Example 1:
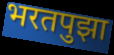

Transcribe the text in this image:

भरतपुझा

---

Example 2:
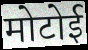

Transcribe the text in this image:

मोटोई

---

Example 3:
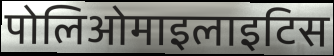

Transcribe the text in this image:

पोलिओमाइलाइटिस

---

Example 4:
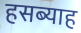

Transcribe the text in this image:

हसब्याह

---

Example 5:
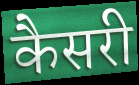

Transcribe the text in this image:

कैसरी